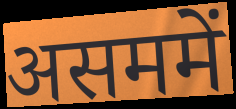
असममें